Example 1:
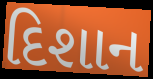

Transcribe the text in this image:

દિશાન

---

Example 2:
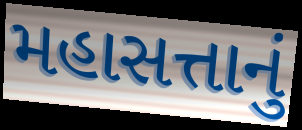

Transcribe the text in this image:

મહાસત્તાનું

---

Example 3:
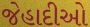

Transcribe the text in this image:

જેહાદીઓ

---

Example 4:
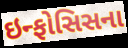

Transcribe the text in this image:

ઇન્ફોસિસના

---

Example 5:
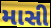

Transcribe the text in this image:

માસી